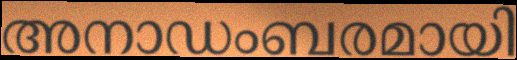
അനാഡംബരമായി